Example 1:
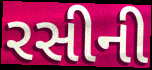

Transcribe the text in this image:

રસીની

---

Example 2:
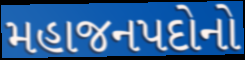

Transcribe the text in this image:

મહાજનપદોનો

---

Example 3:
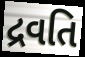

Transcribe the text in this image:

દ્રવતિ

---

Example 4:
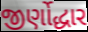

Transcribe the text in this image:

જીર્ણોદ્ધાર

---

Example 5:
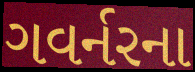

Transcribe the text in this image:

ગવર્નરના